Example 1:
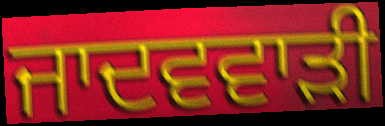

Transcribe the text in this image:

ਜਾਦਵਵਾੜੀ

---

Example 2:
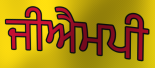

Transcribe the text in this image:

ਜੀਐਮਪੀ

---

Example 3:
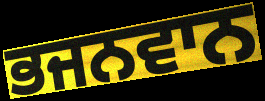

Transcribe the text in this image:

ਭਜਨਵਾਨ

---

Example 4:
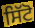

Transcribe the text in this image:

ਸਿੱਟੋ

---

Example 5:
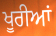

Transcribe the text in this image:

ਖੂਰੀਆਂ